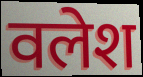
वलेश